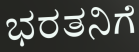
ಭರತನಿಗೆ